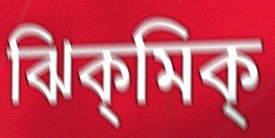
ঝিক্‌মিক্